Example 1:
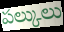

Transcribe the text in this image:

పల్కులు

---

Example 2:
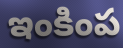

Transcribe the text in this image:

ఇంకింప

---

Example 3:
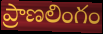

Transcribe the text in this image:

ప్రాణలింగం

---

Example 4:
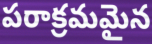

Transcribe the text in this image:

పరాక్రమమైన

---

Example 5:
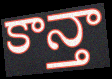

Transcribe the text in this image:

కాన్తా